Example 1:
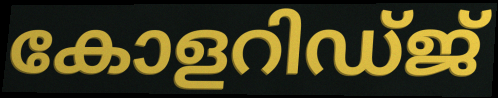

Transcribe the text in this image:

കോളറിഡ്ജ്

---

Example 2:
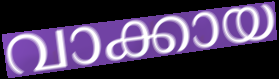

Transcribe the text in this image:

വാക്കായ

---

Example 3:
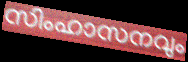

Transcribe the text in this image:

സിംഹാസനവും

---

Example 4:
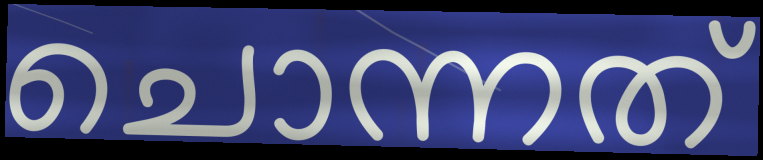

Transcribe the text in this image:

ചൊന്നത്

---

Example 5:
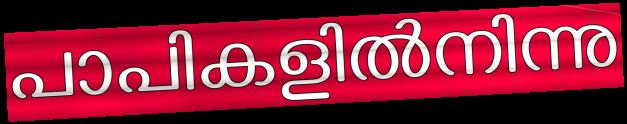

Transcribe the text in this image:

പാപികളിൽനിന്നു